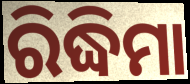
ରିଦ୍ଧିମା